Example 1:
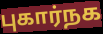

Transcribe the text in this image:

புகார்நக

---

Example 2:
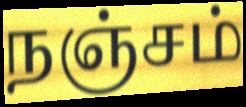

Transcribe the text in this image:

நஞ்சம்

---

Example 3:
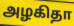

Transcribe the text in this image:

அழகிதா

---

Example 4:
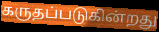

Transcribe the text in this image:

கருதப்படுகின்றது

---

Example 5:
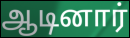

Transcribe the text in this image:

ஆடினார்